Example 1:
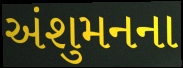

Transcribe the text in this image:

અંશુમનના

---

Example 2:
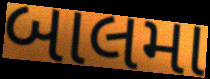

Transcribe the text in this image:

બાલમા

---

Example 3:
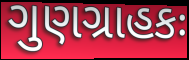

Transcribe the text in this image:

ગુણગ્રાહકઃ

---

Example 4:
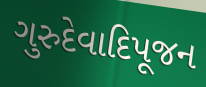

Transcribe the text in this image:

ગુરુદેવાદિપૂજન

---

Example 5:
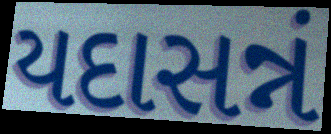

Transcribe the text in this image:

યદાસન્નં